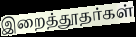
இறைத்தூதர்கள்